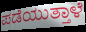
ಪಡೆಯುತ್ತಾಳೆ